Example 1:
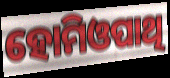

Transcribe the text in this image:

ହୋମିଓପାଥି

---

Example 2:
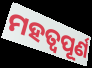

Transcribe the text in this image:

ମହତ୍ୱପୂର୍ଣ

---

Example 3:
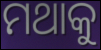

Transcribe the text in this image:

ମଥାକୁ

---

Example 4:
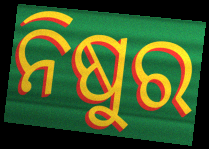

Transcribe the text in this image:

ନିଷୁର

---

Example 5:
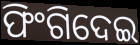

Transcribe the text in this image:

ଫିଂଗିଦେଇ